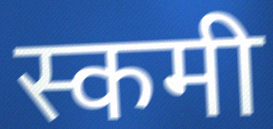
स्कमी